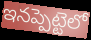
ఇనప్పెట్టెలో